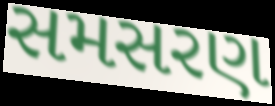
સમસરણ